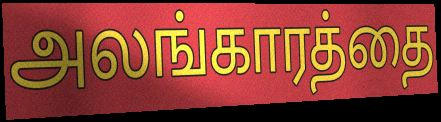
அலங்காரத்தை